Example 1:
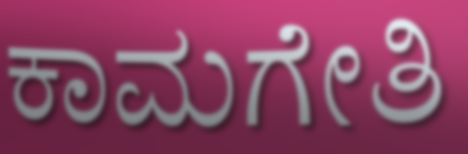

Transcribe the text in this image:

ಕಾಮಗೇತಿ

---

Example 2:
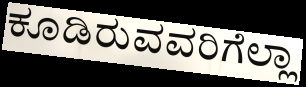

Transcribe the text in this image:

ಕೂಡಿರುವವರಿಗೆಲ್ಲಾ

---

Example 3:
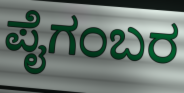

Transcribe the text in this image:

ಪೈಗಂಬರ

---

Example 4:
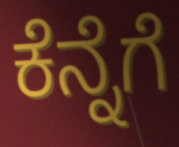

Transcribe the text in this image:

ಕೆನ್ನೆಗೆ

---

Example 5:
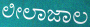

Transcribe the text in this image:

ಲೀಲಾಜಾಲ